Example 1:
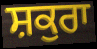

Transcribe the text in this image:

ਸ਼ਕੁਰਾ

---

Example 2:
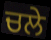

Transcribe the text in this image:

ਚਲੇ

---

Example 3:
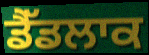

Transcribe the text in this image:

ਡੈੱਡਲਾਕ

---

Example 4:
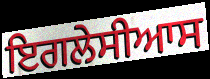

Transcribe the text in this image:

ਇਗਲੇਸੀਆਸ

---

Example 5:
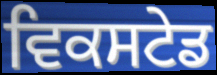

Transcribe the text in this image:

ਵਿਕਸਟੇਡ